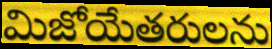
మిజోయేతరులను